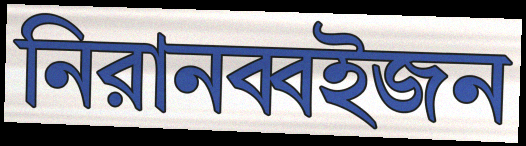
নিরানব্বইজন